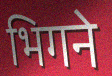
भिगने